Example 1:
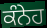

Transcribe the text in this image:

ਕੰਨੇਹ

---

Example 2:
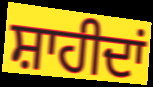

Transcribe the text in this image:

ਸ਼ਾਹੀਦਾਂ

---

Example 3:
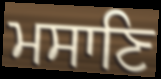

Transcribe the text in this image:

ਮਸਾਣਿ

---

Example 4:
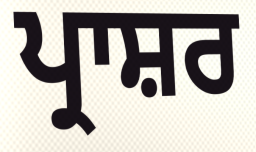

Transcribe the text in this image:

ਪ੍ਰਾਸ਼ਰ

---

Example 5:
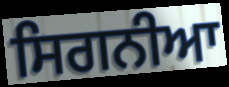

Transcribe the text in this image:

ਸਿਗਨੀਆ